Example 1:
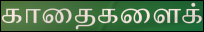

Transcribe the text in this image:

காதைகளைக்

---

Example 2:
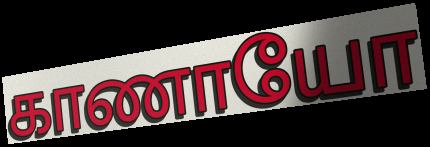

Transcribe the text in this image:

காணாயோ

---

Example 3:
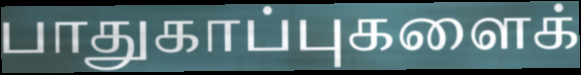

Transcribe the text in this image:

பாதுகாப்புகளைக்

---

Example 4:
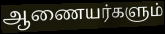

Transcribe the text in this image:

ஆணையர்களும்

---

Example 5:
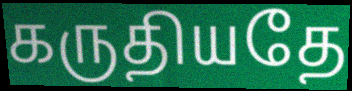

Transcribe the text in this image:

கருதியதே